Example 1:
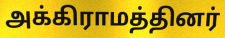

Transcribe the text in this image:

அக்கிராமத்தினர்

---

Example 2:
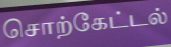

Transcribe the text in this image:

சொற்கேட்டல்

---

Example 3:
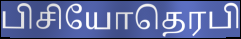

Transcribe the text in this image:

பிசியோதெரபி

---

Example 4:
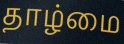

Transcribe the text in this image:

தாழ்மை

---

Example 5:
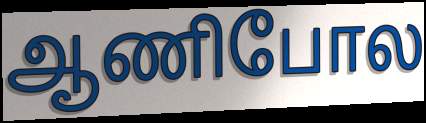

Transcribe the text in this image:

ஆணிபோல